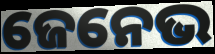
ଜେନେଭ